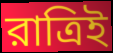
রাত্রিই